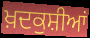
ਖ਼ਦਕੁਸ਼ੀਆਂ